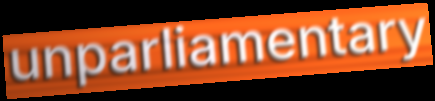
unparliamentary